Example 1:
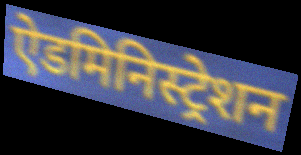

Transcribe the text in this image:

ऐडमिनिस्ट्रेशन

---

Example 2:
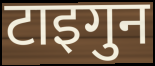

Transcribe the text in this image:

टाइगुन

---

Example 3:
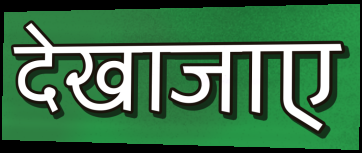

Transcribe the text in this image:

देखाजाए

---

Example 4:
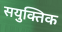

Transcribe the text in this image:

सयुक्तिक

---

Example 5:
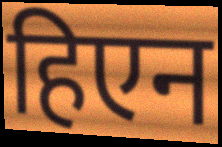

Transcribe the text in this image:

हिएन